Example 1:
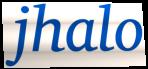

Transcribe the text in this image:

jhalo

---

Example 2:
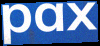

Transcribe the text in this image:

pax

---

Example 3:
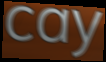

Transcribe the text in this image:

cay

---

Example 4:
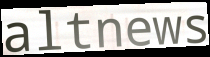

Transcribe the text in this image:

altnews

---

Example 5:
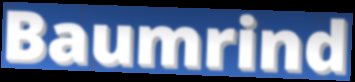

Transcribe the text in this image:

Baumrind